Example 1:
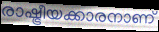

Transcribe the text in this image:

രാഷ്ട്രീയക്കാരനാണ്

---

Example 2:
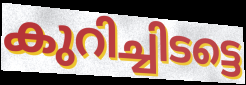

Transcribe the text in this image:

കുറിച്ചിടട്ടെ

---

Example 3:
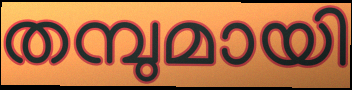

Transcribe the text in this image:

തമ്പുമായി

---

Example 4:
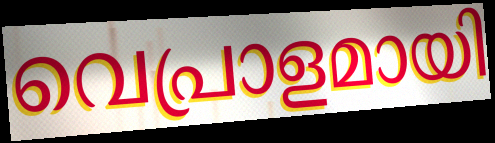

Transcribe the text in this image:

വെപ്രാളമായി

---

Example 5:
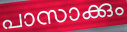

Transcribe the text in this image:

പാസാക്കും